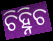
ଚିହ୍ନିଚ